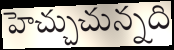
హెచ్చుచున్నది